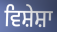
ਵਿਸ਼ੇਸ਼ਾ